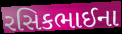
રસિકભાઈના